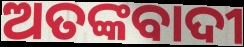
ଅତଙ୍କବାଦୀ